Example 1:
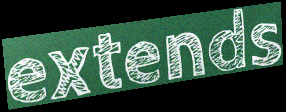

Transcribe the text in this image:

extends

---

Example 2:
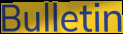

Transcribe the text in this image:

Bulletin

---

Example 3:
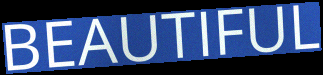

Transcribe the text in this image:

BEAUTIFUL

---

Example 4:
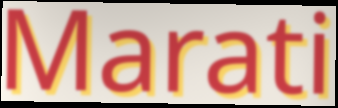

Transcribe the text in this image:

Marati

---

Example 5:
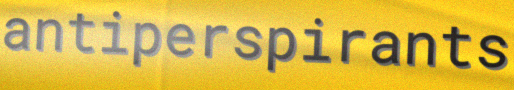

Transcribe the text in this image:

antiperspirants